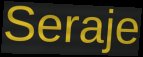
Seraje